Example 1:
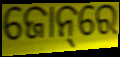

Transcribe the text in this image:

ଜୋନ୍‌ରେ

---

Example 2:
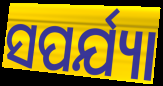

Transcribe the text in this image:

ସପର୍ଯ୍ୟା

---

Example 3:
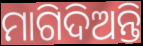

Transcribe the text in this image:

ମାଗିଦିଅନ୍ତି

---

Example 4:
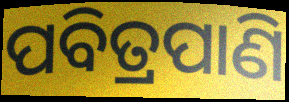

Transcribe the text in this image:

ପବିତ୍ରପାଣି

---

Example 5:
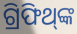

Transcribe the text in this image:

ଗ୍ରିଫିଥ୍‌ଙ୍କ